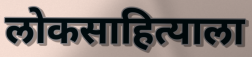
लोकसाहित्याला